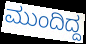
ಮುಂದಿದ್ದ